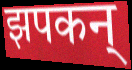
झपकन्